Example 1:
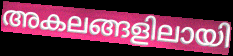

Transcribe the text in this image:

അകലങ്ങളിലായി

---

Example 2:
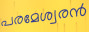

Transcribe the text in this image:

പരമേശ്വരൻ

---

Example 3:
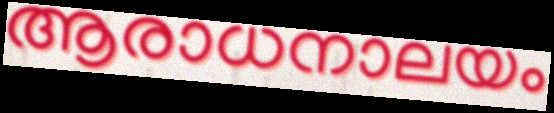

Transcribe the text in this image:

ആരാധനാലയം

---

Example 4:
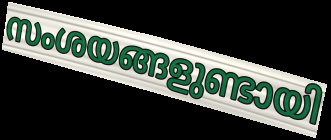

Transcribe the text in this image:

സംശയങ്ങളുണ്ടായി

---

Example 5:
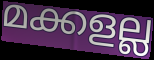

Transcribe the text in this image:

മക്കളല്ല